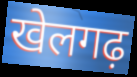
खेलगढ़